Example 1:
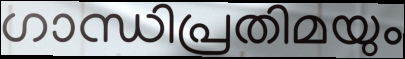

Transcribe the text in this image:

ഗാന്ധിപ്രതിമയും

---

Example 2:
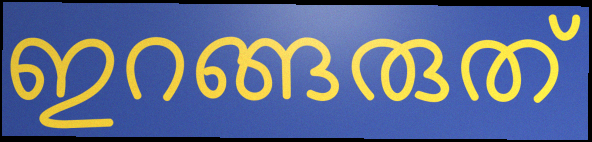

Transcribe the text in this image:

ഇറങ്ങരുത്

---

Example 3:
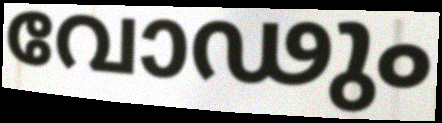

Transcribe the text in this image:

വോഢും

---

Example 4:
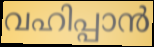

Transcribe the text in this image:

വഹിപ്പാൻ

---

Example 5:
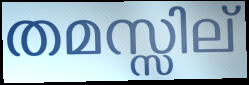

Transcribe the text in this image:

തമസ്സില്